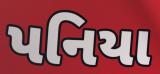
પનિયા